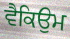
ਵੈਕਿਉਮ